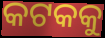
କଟକକୁ